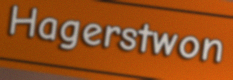
Hagerstwon